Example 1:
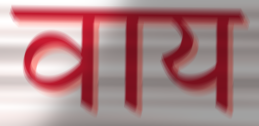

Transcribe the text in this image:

वाय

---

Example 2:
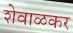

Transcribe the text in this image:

शेवाळकर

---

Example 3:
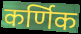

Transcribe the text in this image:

कर्णिक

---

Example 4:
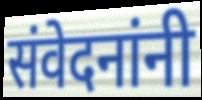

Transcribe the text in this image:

संवेदनांनी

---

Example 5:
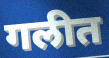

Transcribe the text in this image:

गलीत